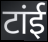
टांई